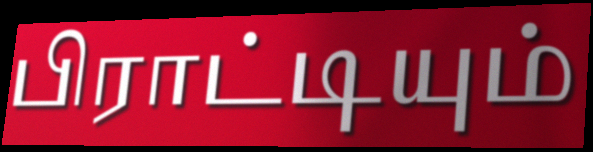
பிராட்டியும்